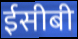
ईसीबी